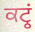
ਕਟ੍ਠਂ